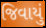
જિવાયું